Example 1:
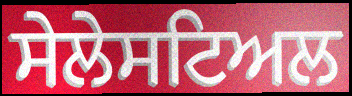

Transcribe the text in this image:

ਸੇਲੇਸਟਿਅਲ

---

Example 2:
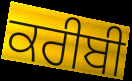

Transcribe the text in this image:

ਕਰੀਬੀ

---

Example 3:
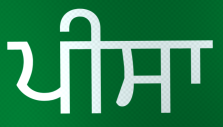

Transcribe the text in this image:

ਪੀਸਾ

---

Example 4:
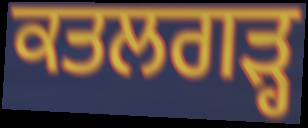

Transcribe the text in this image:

ਕਤਲਗੜ੍ਹ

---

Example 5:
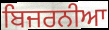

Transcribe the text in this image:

ਬਿਜਰਨੀਆ